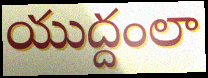
యుద్దంలా